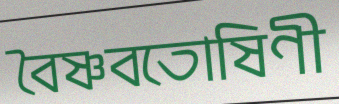
বৈষ্ণবতোষিণী